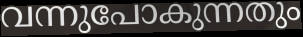
വന്നുപോകുന്നതും